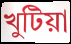
খুটিয়া